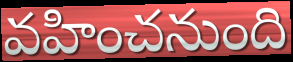
వహించనుంది